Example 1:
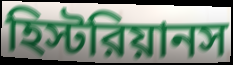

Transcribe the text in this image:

হিস্টরিয়ানস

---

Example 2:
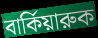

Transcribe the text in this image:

বার্কিয়ারুক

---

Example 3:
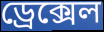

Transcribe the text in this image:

ড্রেক্সেল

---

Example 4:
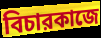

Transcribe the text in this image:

বিচারকাজে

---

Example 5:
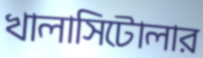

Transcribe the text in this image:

খালাসিটোলার